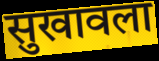
सुखावला